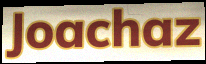
Joachaz